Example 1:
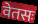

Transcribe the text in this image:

वेतसः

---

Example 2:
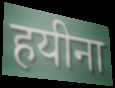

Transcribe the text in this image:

हयीना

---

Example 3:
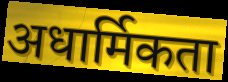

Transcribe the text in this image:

अधार्मिकता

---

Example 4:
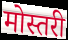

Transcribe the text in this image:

मोस्तरी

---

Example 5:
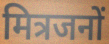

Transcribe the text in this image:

मित्रजनों